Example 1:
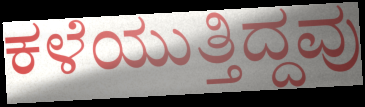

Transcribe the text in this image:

ಕಳೆಯುತ್ತಿದ್ದವು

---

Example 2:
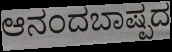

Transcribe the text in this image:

ಆನಂದಬಾಷ್ಪದ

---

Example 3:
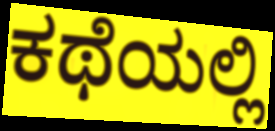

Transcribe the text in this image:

ಕಥೆಯಲ್ಲಿ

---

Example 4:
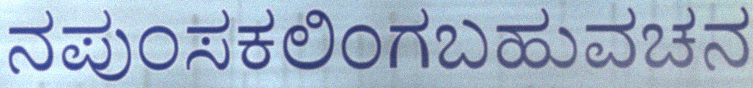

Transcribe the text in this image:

ನಪುಂಸಕಲಿಂಗಬಹುವಚನ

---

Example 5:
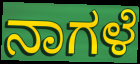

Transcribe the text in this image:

ನಾಗಳೆ